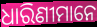
ଧାରିଣୀମାନେ